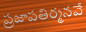
ప్రజాపతిర్మనవే